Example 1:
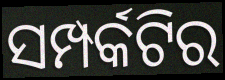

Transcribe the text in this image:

ସମ୍ପର୍କଟିର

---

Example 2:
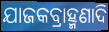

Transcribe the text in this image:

ଯାଜକବ୍ରାହ୍ମଣାଦି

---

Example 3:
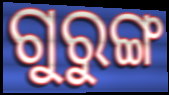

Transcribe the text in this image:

ଗୁରୁଙ୍ଗ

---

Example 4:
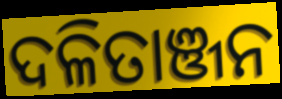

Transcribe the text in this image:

ଦଳିତାଞ୍ଜନ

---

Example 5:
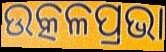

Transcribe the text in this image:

ଉତ୍କଳପ୍ରଭା